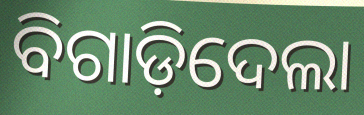
ବିଗାଡ଼ିଦେଲା